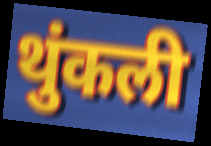
थुंकली